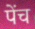
पेंच